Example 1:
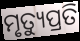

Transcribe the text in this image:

ମୃତ୍ୟୁପ୍ରତି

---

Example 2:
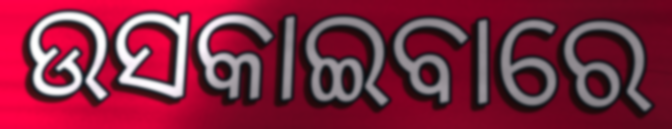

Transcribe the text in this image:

ଉସକାଇବାରେ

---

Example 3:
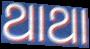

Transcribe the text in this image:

ଥାଥା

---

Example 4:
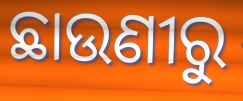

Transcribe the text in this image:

ଛାଉଣୀରୁ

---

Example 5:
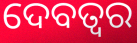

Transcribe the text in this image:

ଦେବତ୍ଵର